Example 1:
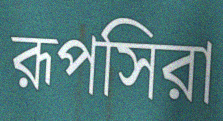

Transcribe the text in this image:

রূপসিরা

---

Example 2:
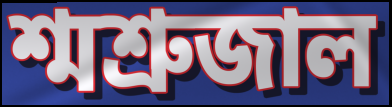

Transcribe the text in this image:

শ্মশ্রুজাল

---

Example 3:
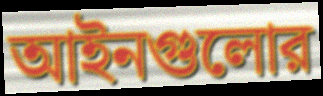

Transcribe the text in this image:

আইনগুলোর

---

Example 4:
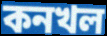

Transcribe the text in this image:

কনখল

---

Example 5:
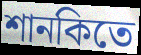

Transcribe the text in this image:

শানকিতে